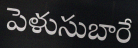
పెళుసుబారే